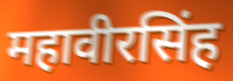
महावीरसिंह